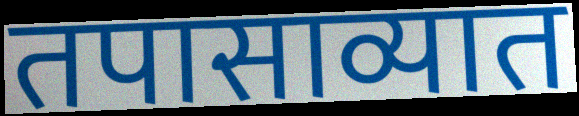
तपासाव्यात